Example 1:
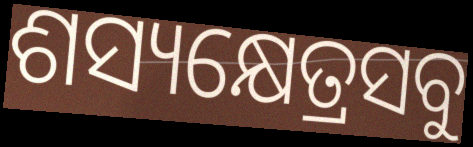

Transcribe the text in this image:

ଶସ୍ୟକ୍ଷେତ୍ରସବୁ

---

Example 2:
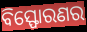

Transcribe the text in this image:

ବିସ୍ଫୋରଣର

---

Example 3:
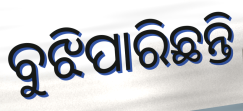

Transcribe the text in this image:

ବୁଝିପାରିଛନ୍ତି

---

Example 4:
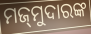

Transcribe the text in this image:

ମଜ୍‍ମୁଦାରଙ୍କ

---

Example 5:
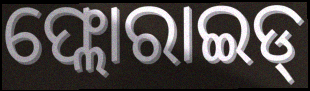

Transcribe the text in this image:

ଫ୍ଲୋରାଇଡ୍